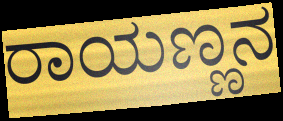
ರಾಯಣ್ಣನ